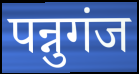
पन्नुगंज